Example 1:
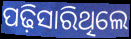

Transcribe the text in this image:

ପଢ଼ିସାରିଥିଲେ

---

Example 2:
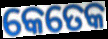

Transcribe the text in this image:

କେତେକ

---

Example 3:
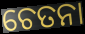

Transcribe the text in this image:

ଚେତନା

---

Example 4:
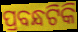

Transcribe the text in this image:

ପ୍ରବନ୍ଧଟିକି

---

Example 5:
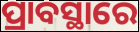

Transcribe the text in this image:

ପ୍ରାବସ୍ଥାରେ